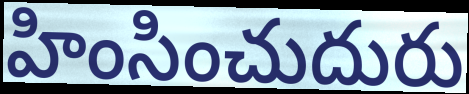
హింసించుదురు